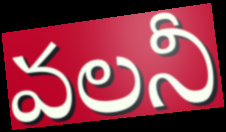
వలనీ